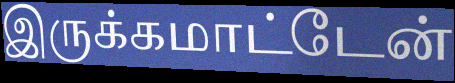
இருக்கமாட்டேன்